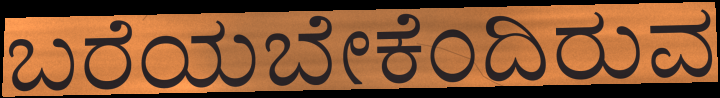
ಬರೆಯಬೇಕೆಂದಿರುವ